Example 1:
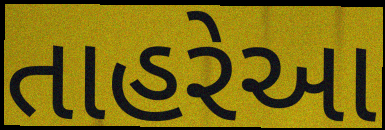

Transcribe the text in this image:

તાહરેઆ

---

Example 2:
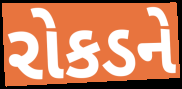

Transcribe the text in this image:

રોકડને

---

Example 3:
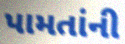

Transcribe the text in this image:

પામતાંની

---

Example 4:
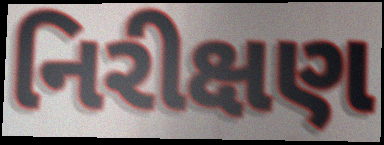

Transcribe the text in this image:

નિરીક્ષણ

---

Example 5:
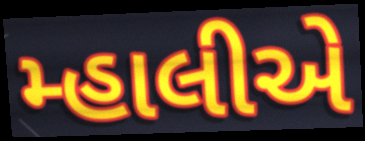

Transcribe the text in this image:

મ્હાલીએ